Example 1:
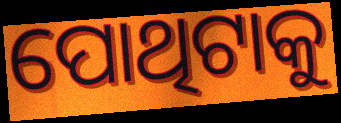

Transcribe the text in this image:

ପୋଥିଟାକୁ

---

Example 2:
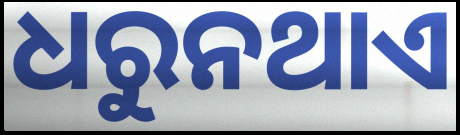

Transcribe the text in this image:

ଧରୁନଥାଏ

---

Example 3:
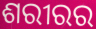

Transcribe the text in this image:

ଶରୀରର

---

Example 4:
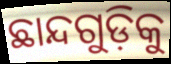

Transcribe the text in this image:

ଛାନ୍ଦଗୁଡ଼ିକୁ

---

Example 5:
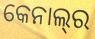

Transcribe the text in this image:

କେନାଲ୍‍ର